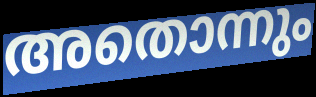
അതൊന്നും